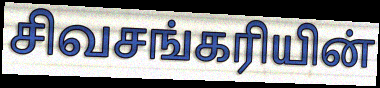
சிவசங்கரியின்